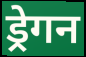
ड्रेगन